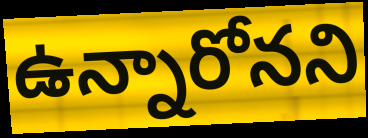
ఉన్నారోనని